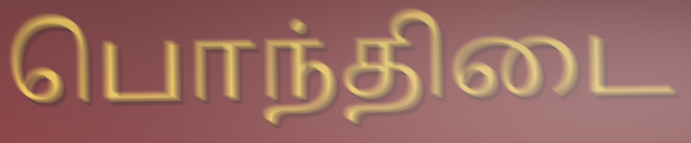
பொந்திடை